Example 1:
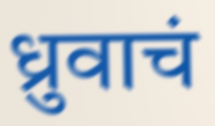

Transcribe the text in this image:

ध्रुवाचं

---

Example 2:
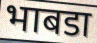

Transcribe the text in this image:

भाबडा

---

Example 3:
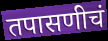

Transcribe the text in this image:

तपासणीचं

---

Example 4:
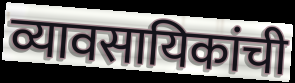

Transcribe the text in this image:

व्यावसायिकांची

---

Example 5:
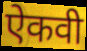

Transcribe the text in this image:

ऐकवी